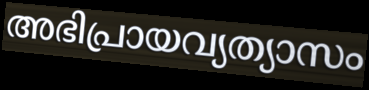
അഭിപ്രായവ്യത്യാസം